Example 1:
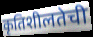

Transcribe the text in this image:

कृतिशीलतेची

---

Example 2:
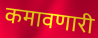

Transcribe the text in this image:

कमावणारी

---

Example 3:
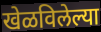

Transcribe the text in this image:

खेळविलेल्या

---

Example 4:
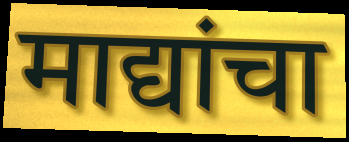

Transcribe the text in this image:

माद्यांचा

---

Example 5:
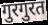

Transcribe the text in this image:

गुरगुरत